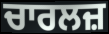
ਚਾਰਲਜ਼